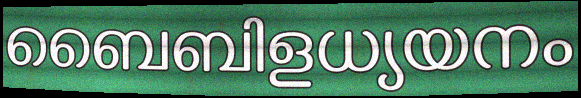
ബൈബിളധ്യയനം